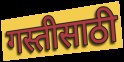
गस्तीसाठी